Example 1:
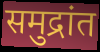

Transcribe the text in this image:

समुद्रांत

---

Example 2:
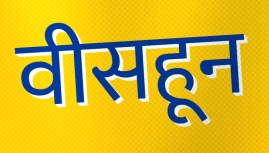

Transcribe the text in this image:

वीसहून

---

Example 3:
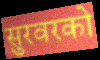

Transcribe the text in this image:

सुरवरको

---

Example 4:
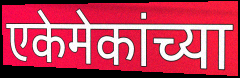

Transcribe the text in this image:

एकेमेकांच्या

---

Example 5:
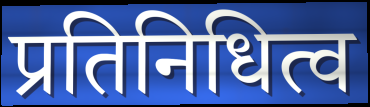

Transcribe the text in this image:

प्रतिनिधित्व